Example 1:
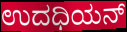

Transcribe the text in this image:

ಉದಧಿಯನ್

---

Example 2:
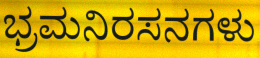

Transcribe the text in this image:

ಭ್ರಮನಿರಸನಗಳು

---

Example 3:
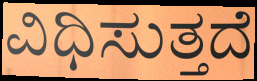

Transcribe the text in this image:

ವಿಧಿಸುತ್ತದೆ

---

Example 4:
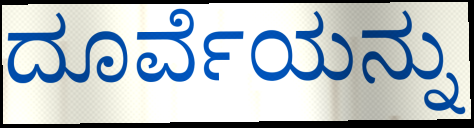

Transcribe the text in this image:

ದೂರ್ವೆಯನ್ನು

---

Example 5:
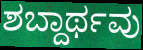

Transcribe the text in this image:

ಶಬ್ದಾರ್ಥವು